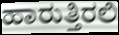
ಹಾರುತ್ತಿರಲಿ